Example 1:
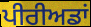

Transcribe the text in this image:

ਪੀਰੀਅਡਾਂ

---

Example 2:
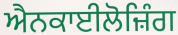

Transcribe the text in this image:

ਐਨਕਾਈਲੋਜ਼ਿੰਗ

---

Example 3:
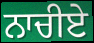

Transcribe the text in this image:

ਨਾਚੀਏ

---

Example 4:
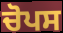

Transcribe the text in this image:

ਚੋਪਸ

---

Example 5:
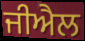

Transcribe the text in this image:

ਜੀਐਲ